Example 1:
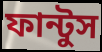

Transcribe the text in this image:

ফান্টুস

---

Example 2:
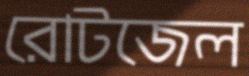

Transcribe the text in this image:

রোটজেল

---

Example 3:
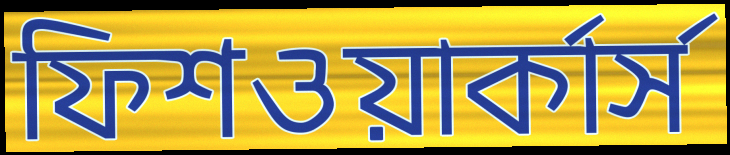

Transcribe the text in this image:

ফিশওয়ার্কার্স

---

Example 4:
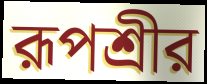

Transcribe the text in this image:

রূপশ্রীর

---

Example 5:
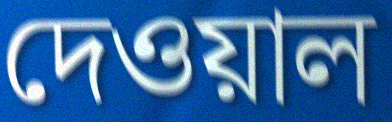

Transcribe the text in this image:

দেওয়াল